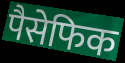
पैसेफिक